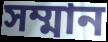
সম্মান